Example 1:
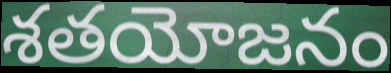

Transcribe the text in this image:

శతయోజనం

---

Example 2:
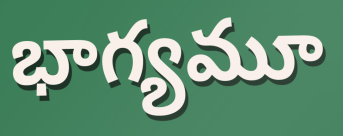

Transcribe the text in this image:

భాగ్యమూ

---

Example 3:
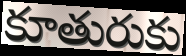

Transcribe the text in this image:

కూతురుకు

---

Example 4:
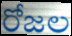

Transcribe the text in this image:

రోజల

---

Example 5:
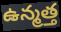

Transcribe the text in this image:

ఉన్మత్త